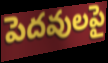
పెదవులపై